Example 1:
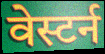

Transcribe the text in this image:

वेस्‍टर्न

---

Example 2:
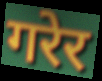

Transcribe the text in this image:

गरेर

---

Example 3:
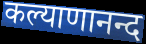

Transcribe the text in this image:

कल्याणानन्द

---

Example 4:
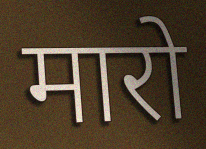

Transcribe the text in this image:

मारो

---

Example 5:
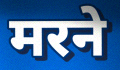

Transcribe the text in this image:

मरने